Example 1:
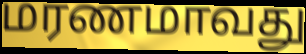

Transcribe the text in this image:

மரணமாவது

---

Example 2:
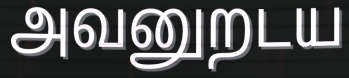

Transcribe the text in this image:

அவனுறடய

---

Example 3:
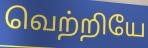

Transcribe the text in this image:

வெற்றியே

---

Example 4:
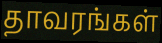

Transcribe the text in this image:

தாவரங்கள்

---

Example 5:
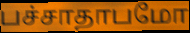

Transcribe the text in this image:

பச்சாதாபமோ